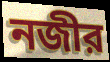
নজীর